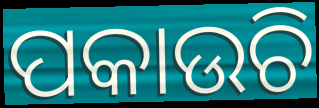
ପକାଉଚି